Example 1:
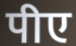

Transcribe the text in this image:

पीए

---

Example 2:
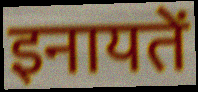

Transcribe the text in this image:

इनायतें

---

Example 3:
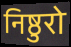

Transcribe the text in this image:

निष्ठुरो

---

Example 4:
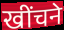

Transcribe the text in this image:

खींचने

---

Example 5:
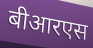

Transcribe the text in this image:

बीआरएस